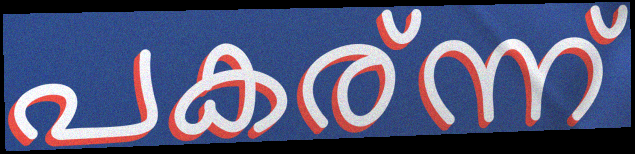
പകര്ന്ന്